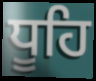
ਧੂਹਿ